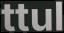
ttul